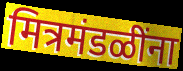
मित्रमंडळींना